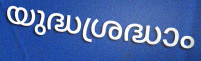
യുദ്ധശ്രദ്ധാം